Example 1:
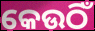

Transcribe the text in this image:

କେଉଠିଁ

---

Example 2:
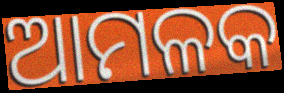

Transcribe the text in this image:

ଆମଳକ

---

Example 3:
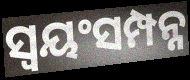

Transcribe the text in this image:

ସ୍ବୟଂସମ୍ପନ୍ନ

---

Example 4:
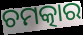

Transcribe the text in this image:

ଚମତ୍କାର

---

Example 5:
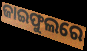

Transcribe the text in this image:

ଜାଇଫୁଲରେ